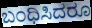
ಬಂಧಿಸಿದರೂ